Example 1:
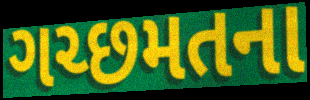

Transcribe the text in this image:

ગચ્છમતના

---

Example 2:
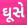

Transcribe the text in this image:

ઘૂસે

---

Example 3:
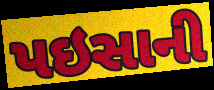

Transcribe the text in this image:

પઇસાની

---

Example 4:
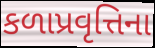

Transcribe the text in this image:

કળાપ્રવૃત્તિના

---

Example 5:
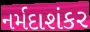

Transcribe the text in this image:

નર્મદાશંકર